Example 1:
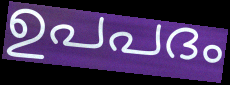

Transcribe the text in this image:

ഉപപദം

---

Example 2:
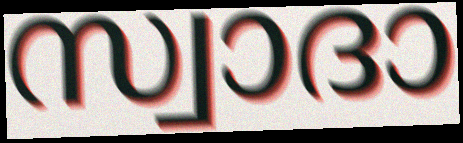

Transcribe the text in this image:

സ്വാദാ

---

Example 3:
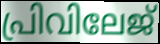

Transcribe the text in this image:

പ്രിവിലേജ്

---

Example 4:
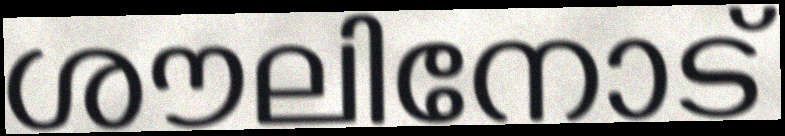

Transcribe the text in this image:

ശൗലിനോട്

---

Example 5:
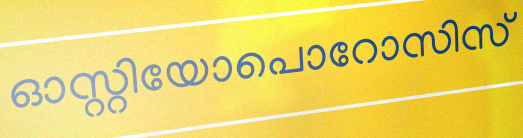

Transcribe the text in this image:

ഓസ്റ്റിയോപൊറോസിസ്